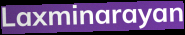
Laxminarayan